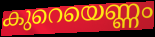
കുറെയെണ്ണം